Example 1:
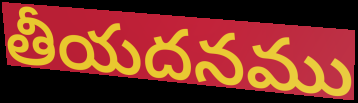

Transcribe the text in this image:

తీయదనము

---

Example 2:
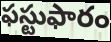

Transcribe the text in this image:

ఫస్టుఫారం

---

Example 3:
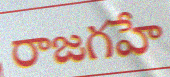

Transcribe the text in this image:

రాజగహే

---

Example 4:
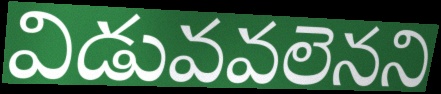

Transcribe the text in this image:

విడువవలెనని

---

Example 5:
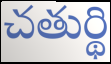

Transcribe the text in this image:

చతుర్థి